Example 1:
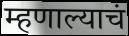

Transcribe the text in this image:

म्हणाल्याचं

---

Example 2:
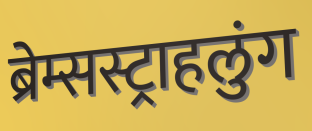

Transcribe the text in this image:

ब्रेम्सस्ट्राहलुंग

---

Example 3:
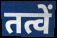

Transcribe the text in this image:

तत्वें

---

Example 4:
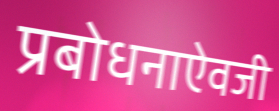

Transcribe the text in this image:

प्रबोधनाऐवजी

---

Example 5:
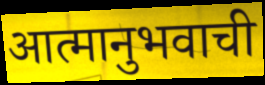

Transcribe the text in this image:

आत्मानुभवाची